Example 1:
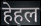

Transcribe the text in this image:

हेहल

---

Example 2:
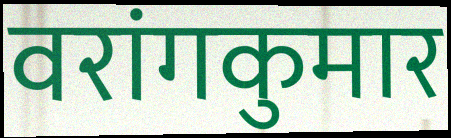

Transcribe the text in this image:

वरांगकुमार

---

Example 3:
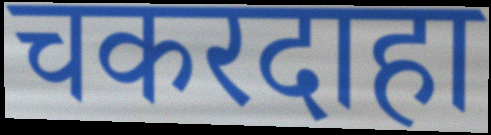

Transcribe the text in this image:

चकरदाहा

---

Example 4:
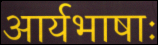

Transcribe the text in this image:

आर्यभाषाः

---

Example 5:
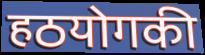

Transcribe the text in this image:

हठयोगकी